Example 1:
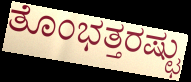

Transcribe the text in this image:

ತೊಂಭತ್ತರಷ್ಟು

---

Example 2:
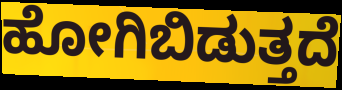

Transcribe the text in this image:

ಹೋಗಿಬಿಡುತ್ತದೆ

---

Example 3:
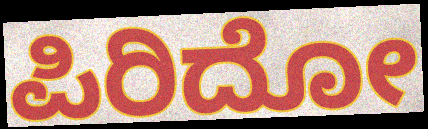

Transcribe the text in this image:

ಪಿರಿದೋ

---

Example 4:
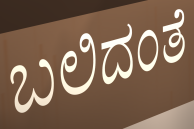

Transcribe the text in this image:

ಬಲಿದಂತೆ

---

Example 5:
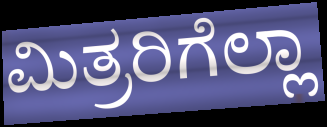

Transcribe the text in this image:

ಮಿತ್ರರಿಗೆಲ್ಲಾ